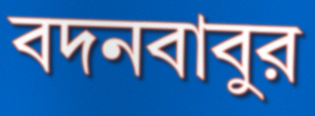
বদনবাবুর